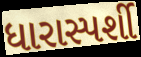
ધારાસ્પર્શી